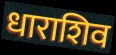
धाराशिव